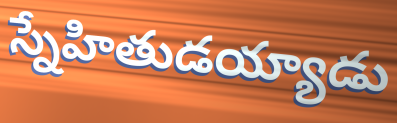
స్నేహితుడయ్యాడు